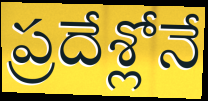
ప్రదేశ్లోనే